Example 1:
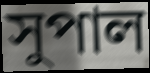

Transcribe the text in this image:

সুপাল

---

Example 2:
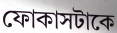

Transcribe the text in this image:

ফোকাসটাকে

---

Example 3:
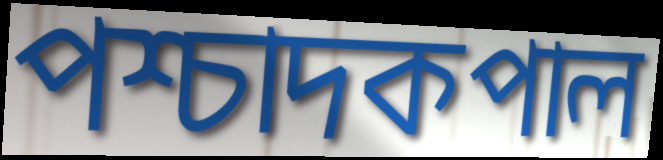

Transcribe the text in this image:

পশ্চাদকপাল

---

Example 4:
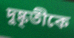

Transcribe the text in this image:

দুষ্কৃতীকে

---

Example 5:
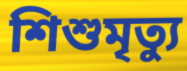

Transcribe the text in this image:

শিশুমৃত্যু